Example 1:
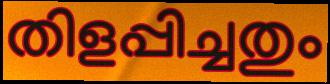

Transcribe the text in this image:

തിളപ്പിച്ചതും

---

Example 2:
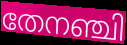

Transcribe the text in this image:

തേനഞ്ചി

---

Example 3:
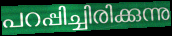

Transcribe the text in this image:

പറപ്പിച്ചിരിക്കുന്നു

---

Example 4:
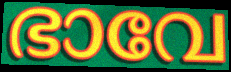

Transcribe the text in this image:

ഭാവേ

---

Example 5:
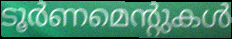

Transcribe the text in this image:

ടൂർണമെന്റുകൾ